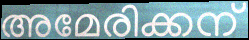
അമേരിക്കന്